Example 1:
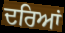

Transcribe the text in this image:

ਦਰਿਆਂ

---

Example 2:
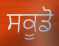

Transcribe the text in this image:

ਸਕੂਡੋ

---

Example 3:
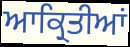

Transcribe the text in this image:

ਆਕ੍ਰਿਤੀਆਂ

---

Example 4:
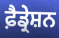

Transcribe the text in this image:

ਫ਼ੈਡ੍ਰੇਸ਼ਨ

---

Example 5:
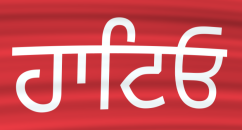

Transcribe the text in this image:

ਹਾਟਿਓ